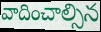
వాదించాల్సిన